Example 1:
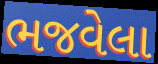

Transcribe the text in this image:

ભજવેલા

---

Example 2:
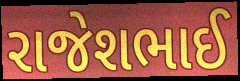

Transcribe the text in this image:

રાજેશભાઈ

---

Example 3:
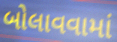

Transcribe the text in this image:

બોલાવવામાં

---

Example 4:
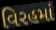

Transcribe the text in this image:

વિરહમાં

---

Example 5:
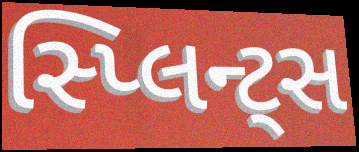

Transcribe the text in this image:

સ્પ્લિન્ટ્સ